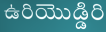
ఉరియొడ్డిరి